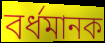
বর্ধমানক